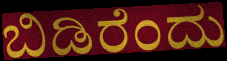
ಬಿಡಿರೆಂದು